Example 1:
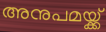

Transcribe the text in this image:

അനുപമയ്ക്ക്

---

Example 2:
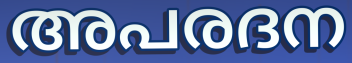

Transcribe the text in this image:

അപരദന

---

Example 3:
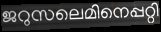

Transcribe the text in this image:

ജറുസലെമിനെപ്പറ്റി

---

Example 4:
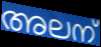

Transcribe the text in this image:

അലന്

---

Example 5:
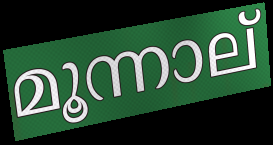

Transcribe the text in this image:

മൂന്നാല്